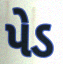
પેડ